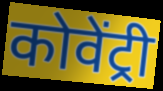
कोवेंट्री